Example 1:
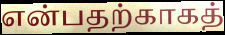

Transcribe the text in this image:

என்பதற்காகத்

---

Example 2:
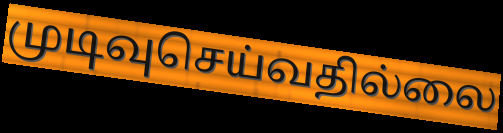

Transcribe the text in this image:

முடிவுசெய்வதில்லை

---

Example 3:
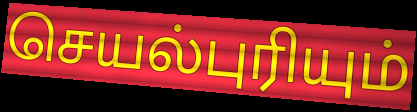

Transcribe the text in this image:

செயல்புரியும்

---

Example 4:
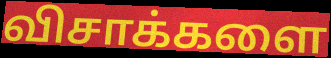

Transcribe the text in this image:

விசாக்களை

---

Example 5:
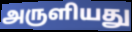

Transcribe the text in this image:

அருளியது